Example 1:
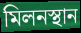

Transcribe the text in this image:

মিলনস্থান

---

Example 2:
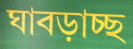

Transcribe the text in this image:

ঘাবড়াচ্ছ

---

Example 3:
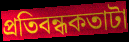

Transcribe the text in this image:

প্রতিবন্ধকতাটা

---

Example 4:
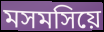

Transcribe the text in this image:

মসমসিয়ে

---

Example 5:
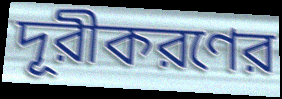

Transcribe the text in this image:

দূরীকরণের